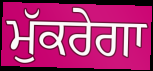
ਮੁੱਕਰੇਗਾ